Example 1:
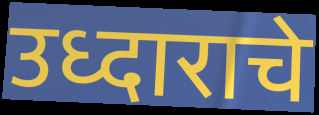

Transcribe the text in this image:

उध्दाराचे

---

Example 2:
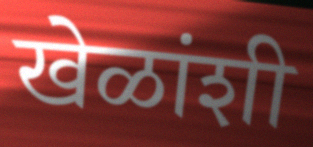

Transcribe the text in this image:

खेळांशी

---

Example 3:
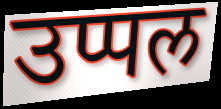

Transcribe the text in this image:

उप्पल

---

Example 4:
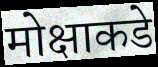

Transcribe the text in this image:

मोक्षाकडे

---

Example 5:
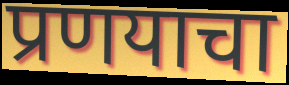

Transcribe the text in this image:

प्रणयाचा